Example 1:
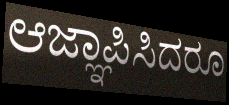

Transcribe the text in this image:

ಆಜ್ಞಾಪಿಸಿದರೂ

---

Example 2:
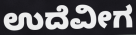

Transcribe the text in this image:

ಉದೆವೀಗ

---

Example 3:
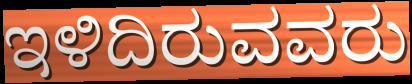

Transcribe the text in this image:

ಇಳಿದಿರುವವರು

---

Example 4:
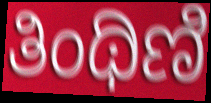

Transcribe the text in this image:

ತಿಂಥಿಣಿ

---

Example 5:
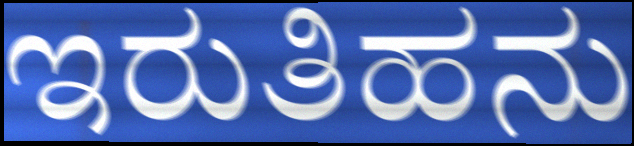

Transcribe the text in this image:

ಇರುತಿಹನು